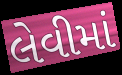
લેવીમાં